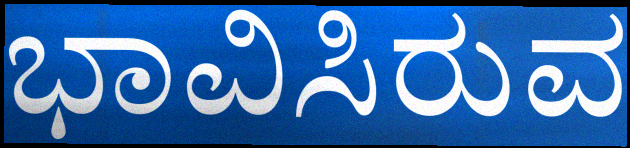
ಭಾವಿಸಿರುವ